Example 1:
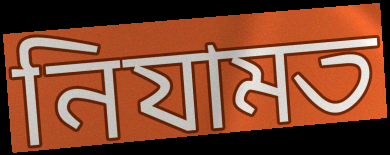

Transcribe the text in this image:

নিযামত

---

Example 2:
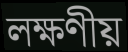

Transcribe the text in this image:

লক্ষণীয়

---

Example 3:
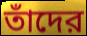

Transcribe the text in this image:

তাঁদের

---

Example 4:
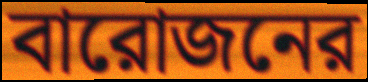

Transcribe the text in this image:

বারোজনের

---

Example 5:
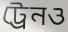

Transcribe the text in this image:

ট্রেনও